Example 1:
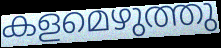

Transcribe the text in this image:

കളമെഴുത്തു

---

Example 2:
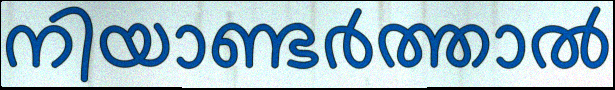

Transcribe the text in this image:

നിയാണ്ടർത്താൽ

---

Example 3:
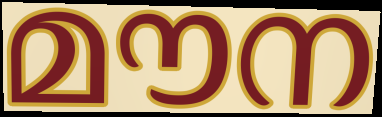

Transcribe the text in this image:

മൗന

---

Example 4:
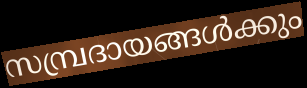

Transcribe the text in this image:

സമ്പ്രദായങ്ങൾക്കും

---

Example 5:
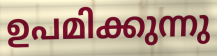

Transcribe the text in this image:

ഉപമിക്കുന്നു